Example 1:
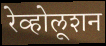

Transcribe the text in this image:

रेव्होलूशन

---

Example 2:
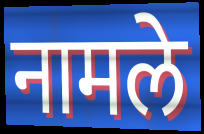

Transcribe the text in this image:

नामले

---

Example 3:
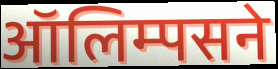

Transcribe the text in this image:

ऑलिम्पसने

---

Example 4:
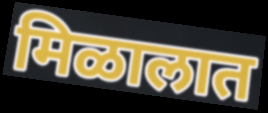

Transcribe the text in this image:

मिळालात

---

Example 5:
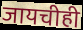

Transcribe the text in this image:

जायचीही